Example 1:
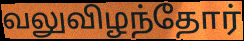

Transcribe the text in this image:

வலுவிழந்தோர்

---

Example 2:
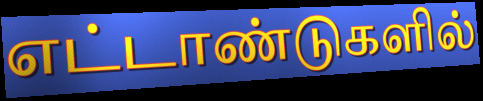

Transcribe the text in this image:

எட்டாண்டுகளில்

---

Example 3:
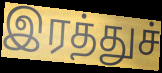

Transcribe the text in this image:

இரத்துச்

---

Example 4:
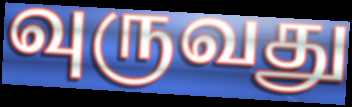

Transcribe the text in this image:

வுருவது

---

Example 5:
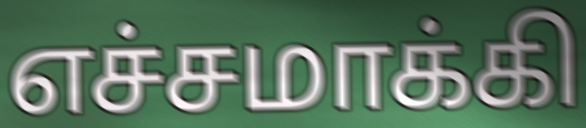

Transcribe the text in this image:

எச்சமாக்கி